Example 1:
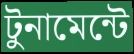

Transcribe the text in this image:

টুনামেন্টে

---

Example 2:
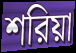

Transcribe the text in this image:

শরিয়া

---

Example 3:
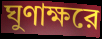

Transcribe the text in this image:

ঘুণাক্ষরে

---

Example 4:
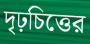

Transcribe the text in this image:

দৃঢ়চিত্তের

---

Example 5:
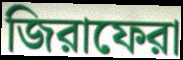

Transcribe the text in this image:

জিরাফেরা